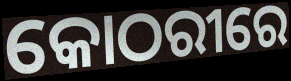
କୋଠରୀରେ